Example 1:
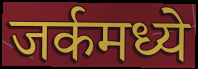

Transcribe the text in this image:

जर्कमध्ये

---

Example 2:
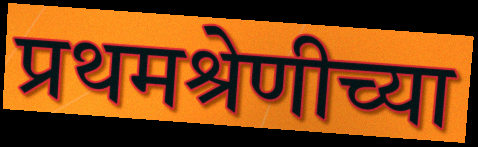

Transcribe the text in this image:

प्रथमश्रेणीच्या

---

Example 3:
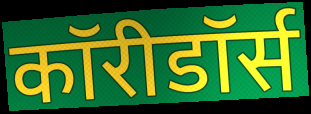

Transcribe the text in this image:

कॉरीडॉर्स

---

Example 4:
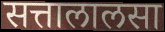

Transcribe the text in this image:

सत्तालालसा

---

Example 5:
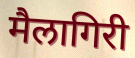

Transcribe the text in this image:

मैलागिरी